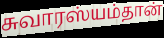
சுவாரஸ்யம்தான்